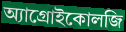
অ্যাগ্রোইকোলজি